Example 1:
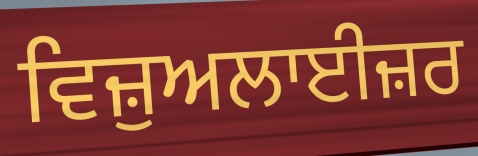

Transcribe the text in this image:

ਵਿਜ਼ੁਅਲਾਈਜ਼ਰ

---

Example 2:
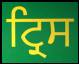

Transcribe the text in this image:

ਟ੍ਰਿਸ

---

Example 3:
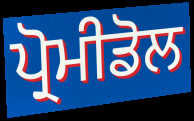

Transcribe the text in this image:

ਪ੍ਰੋਮੀਡੋਲ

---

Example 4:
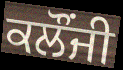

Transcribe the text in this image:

ਕਲੌਂਜੀ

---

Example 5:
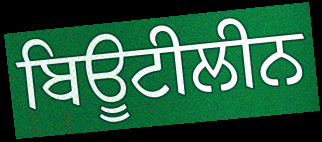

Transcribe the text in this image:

ਬਿਊਟੀਲੀਨ